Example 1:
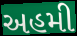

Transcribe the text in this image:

અહમી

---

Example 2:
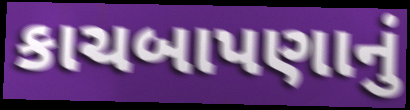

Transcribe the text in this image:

કાચબાપણાનું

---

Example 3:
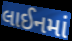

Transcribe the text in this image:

લાઈનમાં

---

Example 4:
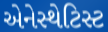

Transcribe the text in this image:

એનેસ્થેટિસ્ટ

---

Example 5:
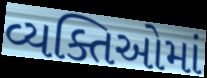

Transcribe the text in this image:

વ્યક્તિઓમાં